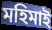
মহিমাই